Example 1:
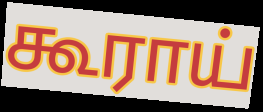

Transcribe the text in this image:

கூராய்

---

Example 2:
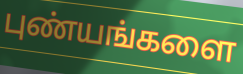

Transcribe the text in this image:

புண்யங்களை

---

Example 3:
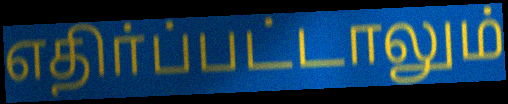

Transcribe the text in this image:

எதிர்ப்பட்டாலும்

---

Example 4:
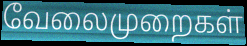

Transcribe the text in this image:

வேலைமுறைகள்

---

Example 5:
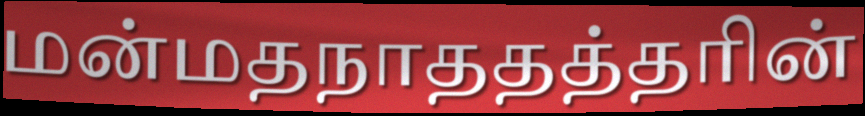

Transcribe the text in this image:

மன்மதநாததத்தரின்